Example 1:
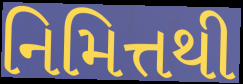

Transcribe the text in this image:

નિમિત્તથી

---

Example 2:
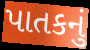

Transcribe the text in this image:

પાતકનું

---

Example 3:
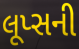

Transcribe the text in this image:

લૂપ્સની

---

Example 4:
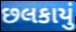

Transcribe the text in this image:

છલકાયું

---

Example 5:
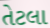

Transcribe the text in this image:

તેટલા